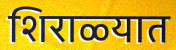
शिराळ्यात